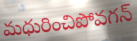
మధురించిపోవగన్